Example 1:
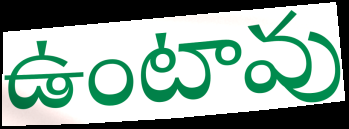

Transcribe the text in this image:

ఉంటావు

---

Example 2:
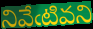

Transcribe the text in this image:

నివేఁటివని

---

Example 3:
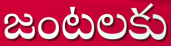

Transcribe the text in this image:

జంటలకు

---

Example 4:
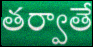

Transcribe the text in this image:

తర్వాతే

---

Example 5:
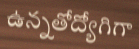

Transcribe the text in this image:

ఉన్నతోద్యోగిగా